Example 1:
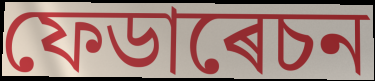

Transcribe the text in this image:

ফেডাৰেচন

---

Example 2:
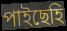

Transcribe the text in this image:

পাইছেহি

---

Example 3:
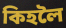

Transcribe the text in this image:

কিহলৈ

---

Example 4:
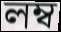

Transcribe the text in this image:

লম্ব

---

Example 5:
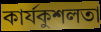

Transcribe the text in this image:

কাৰ্যকুশলতা